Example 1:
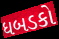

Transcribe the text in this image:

ધબડકો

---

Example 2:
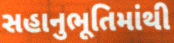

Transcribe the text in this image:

સહાનુભૂતિમાંથી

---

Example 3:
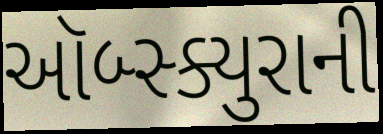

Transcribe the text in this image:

ઑબ્સ્ક્યુરાની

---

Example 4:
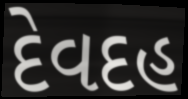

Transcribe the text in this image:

દેવદહ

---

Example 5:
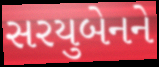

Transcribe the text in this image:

સરયુબેનને